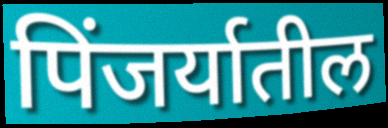
पिंजर्यातील